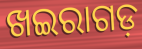
ଖଇରାଗଡ଼